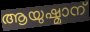
ആയുഷ്മാന്